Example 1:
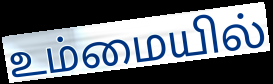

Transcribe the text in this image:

உம்மையில்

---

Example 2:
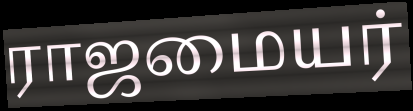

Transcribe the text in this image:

ராஜமையர்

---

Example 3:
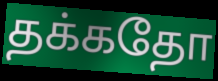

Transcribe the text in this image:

தக்கதோ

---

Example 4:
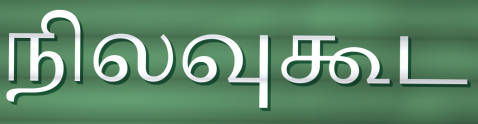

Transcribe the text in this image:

நிலவுகூட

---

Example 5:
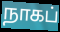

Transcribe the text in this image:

நாகப்